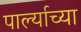
पार्ल्याच्या